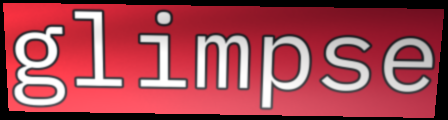
glimpse